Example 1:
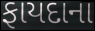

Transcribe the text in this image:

ફાયદાના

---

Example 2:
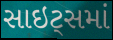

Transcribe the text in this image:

સાઇટ્સમાં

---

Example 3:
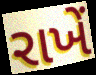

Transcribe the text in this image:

રાખેં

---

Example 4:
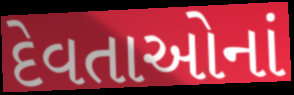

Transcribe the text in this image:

દેવતાઓનાં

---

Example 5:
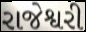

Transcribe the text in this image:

રાજેશ્વરી